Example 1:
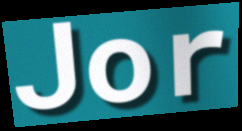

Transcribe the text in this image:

Jor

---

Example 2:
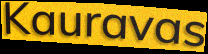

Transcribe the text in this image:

Kauravas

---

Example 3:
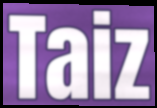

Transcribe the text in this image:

Taiz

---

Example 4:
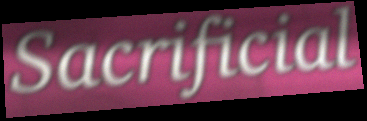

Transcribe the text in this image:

Sacrificial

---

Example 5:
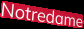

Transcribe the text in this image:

Notredame